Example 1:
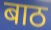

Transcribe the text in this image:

बाठ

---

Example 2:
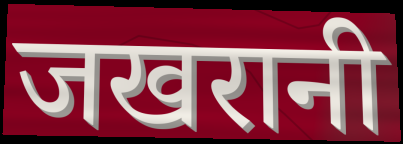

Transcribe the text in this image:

जखरानी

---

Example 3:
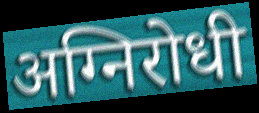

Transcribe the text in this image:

अग्निरोधी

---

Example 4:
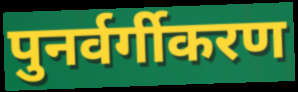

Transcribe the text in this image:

पुनर्वर्गीकरण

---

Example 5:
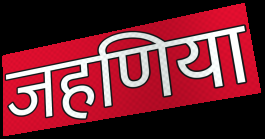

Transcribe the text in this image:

जहणिया